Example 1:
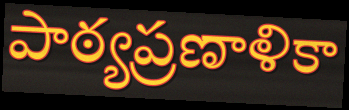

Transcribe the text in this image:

పాఠ్యప్రణాళికా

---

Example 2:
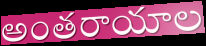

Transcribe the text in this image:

అంతరాయాల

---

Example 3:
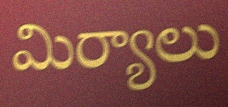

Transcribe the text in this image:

మిర్యాలు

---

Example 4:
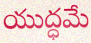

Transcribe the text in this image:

యుద్ధమే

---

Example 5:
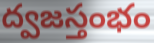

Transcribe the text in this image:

ద్వజస్తంభం